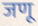
जणू